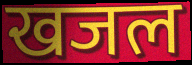
खजल